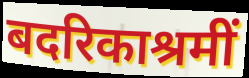
बदरिकाश्रमीं